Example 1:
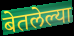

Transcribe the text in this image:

बेतलेल्या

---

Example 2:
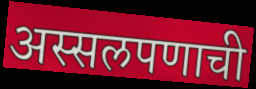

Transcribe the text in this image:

अस्सलपणाची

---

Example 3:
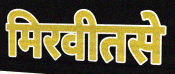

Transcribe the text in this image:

मिरवीतसे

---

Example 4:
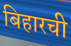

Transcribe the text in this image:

बिहारची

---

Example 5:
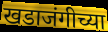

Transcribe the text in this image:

खडाजंगीच्या